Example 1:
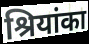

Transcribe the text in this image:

श्रियांका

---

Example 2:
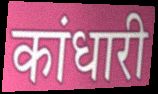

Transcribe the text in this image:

कांधारी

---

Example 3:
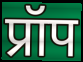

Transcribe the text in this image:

प्रॉप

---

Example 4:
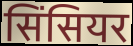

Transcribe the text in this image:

सिंसियर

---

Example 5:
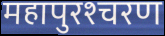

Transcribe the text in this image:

महापुरश्चरण